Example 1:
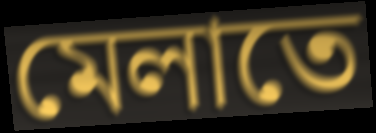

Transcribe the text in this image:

মেলাতে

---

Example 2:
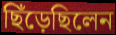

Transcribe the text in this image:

ছিঁড়েছিলেন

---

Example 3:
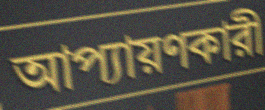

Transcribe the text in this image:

আপ্যায়ণকারী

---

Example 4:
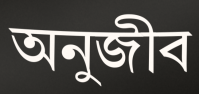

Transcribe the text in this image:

অনুজীব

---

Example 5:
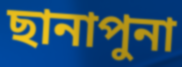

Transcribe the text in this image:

ছানাপুনা